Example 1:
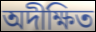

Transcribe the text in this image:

অদীক্ষিত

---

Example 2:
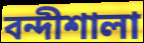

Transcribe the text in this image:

বন্দীশালা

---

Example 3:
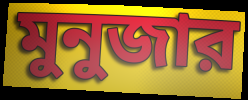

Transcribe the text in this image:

মুনুজার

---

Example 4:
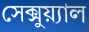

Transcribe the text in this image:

সেক্সুয়্যাল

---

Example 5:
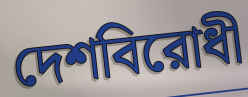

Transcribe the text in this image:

দেশবিরোধী